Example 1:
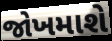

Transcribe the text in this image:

જોખમાશે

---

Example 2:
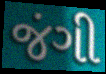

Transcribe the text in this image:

જંગી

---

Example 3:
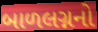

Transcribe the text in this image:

બાળલગ્નનો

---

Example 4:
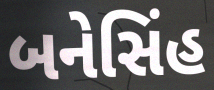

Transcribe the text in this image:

બનેસિંહ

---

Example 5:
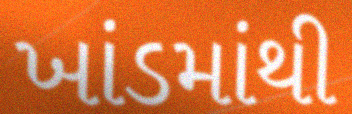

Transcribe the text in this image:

ખાંડમાંથી